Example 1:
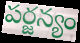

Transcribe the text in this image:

పర్జన్యం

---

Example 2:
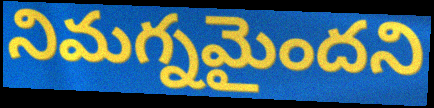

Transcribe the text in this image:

నిమగ్నమైందని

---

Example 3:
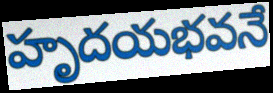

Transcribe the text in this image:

హృదయభవనే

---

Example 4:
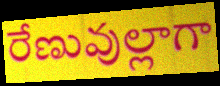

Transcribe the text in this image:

రేణువుల్లాగా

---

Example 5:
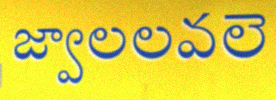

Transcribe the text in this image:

జ్వాలలవలె